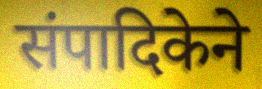
संपादिकेने